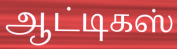
ஆட்டிகஸ்